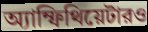
অ্যাম্ফিথিয়েটারও